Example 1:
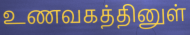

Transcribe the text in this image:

உணவகத்தினுள்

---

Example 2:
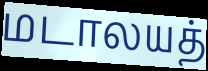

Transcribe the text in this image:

மடாலயத்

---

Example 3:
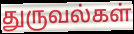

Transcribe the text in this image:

துருவல்கள்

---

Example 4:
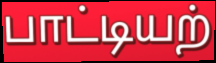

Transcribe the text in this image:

பாட்டியற்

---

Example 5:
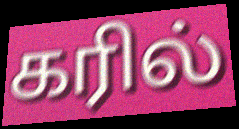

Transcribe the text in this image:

கரில்